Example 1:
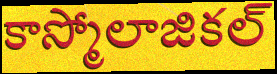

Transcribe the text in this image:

కాస్మోలాజికల్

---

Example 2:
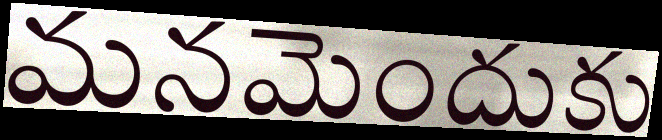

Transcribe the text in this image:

మనమెందుకు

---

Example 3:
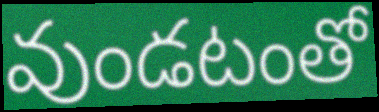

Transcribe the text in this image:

వుండటంతో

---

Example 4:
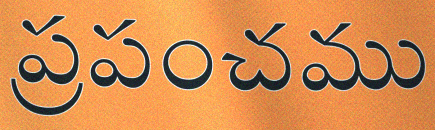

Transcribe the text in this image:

ప్రపంచము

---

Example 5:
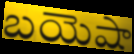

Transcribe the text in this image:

బయెషా